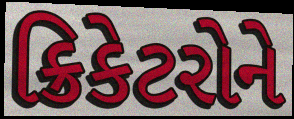
ક્રિકેટરોને